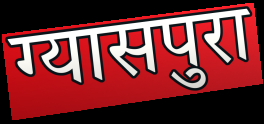
ग्यासपुरा